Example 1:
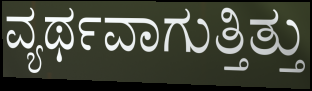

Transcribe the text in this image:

ವ್ಯರ್ಥವಾಗುತ್ತಿತ್ತು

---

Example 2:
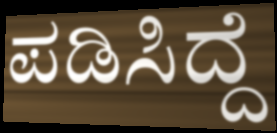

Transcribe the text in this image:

ಪಡಿಸಿದ್ದೆ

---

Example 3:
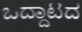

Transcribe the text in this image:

ಒದ್ದಾಟದ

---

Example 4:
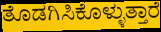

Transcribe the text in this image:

ತೊಡಗಿಸಿಕೊಳ್ಳುತ್ತಾರೆ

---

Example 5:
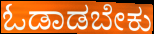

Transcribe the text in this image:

ಓಡಾಡಬೇಕು